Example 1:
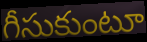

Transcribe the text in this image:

గీసుకుంటూ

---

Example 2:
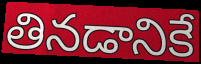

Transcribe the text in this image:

తినడానికే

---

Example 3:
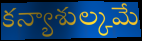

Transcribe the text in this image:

కన్యాశుల్కమే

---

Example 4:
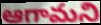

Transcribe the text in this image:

ఆగామని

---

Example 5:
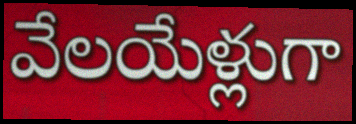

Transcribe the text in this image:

వేలయేళ్లుగా